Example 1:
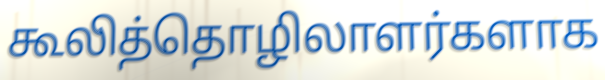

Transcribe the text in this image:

கூலித்தொழிலாளர்களாக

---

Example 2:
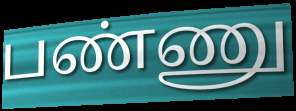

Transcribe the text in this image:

பண்ணு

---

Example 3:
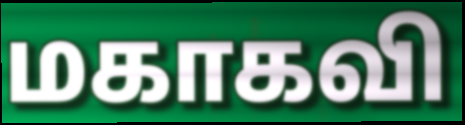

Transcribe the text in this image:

மகாகவி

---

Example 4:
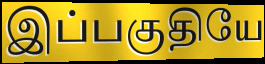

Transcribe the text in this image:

இப்பகுதியே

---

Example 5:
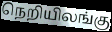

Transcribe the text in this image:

நெறியிலங்கு